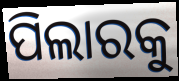
ପିଲାରକୁ